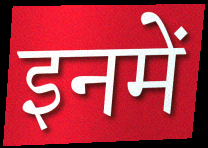
इनमें